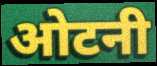
ओटनी